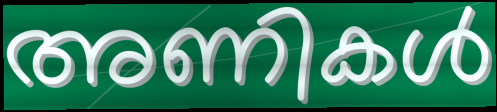
അണികൾ